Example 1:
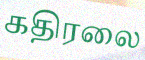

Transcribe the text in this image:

கதிரலை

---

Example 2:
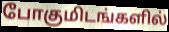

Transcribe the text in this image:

போகுமிடங்களில்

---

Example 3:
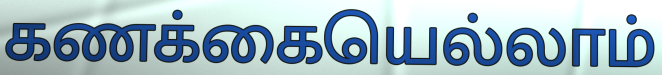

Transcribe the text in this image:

கணக்கையெல்லாம்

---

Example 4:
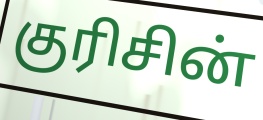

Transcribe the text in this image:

குரிசின்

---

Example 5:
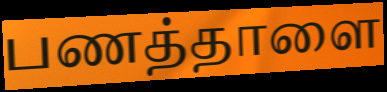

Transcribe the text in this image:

பணத்தாளை